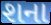
શના